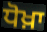
ਧੋਖ਼ਾ